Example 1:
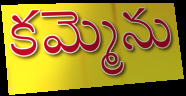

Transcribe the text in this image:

కమ్మెను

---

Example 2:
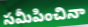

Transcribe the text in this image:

సమీపించినా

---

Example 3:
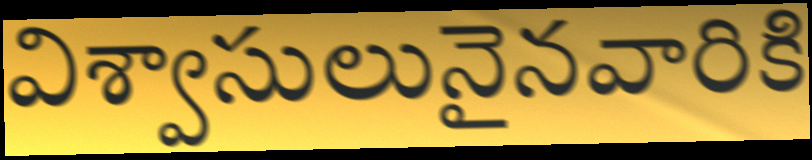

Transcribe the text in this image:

విశ్వాసులునైనవారికి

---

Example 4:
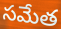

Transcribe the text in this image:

సమేత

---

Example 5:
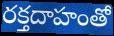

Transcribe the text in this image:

రక్తదాహంతో